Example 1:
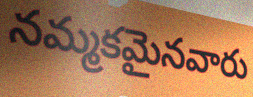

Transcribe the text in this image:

నమ్మకమైనవారు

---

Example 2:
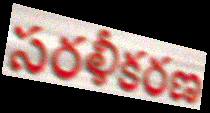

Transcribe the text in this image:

సరళీకరణ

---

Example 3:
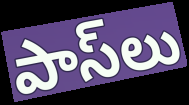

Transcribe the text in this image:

పాస్‌లు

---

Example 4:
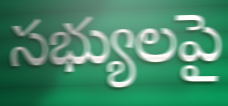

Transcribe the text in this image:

సభ్యులపై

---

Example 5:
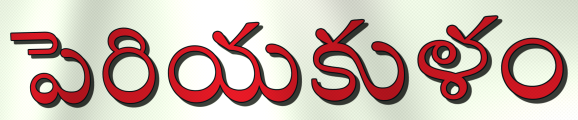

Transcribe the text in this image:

పెరియకుళం